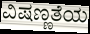
ವಿಷಣ್ಣತೆಯ